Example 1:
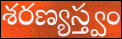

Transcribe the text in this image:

శరణ్యస్త్వం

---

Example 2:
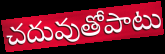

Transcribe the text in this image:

చదువుతోపాటు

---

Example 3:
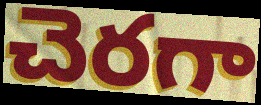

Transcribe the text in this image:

చెరగా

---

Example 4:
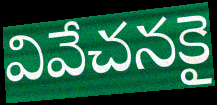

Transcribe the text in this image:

వివేచనకై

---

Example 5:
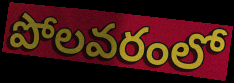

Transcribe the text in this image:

పోలవరంలో